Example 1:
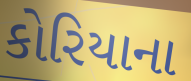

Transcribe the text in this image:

કોરિયાના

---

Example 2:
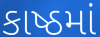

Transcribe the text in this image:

કાષ્ઠમાં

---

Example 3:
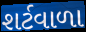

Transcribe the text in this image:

શર્ટવાળા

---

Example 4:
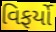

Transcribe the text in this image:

વિફર્યો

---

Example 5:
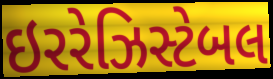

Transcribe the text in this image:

ઇરરેઝિસ્ટેબલ